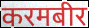
करमबीर